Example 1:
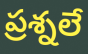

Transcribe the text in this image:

ప్రశ్నలే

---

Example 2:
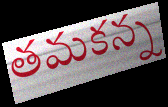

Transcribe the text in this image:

తమకన్న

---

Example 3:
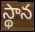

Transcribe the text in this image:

స్థాన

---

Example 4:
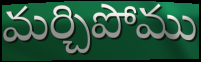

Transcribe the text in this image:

మర్చిపోము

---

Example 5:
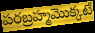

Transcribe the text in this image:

పరబ్రహ్మమొక్కటే